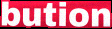
bution